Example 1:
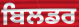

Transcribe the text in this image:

ਬਿਲਡਰ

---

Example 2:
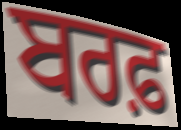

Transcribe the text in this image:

ਬਰਫ਼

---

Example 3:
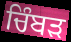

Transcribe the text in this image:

ਚਿੰਬੜ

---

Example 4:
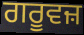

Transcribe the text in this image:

ਗਰੂਵਜ਼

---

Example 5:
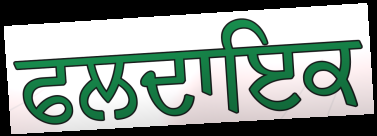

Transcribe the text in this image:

ਫਲਦਾਇਕ